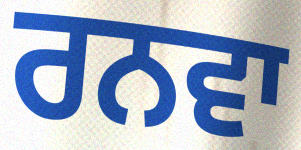
ਰਨਵਾ